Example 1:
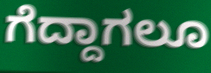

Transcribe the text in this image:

ಗೆದ್ದಾಗಲೂ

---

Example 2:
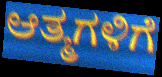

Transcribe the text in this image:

ಆತ್ಮಗಳಿಗೆ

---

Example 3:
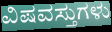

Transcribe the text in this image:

ವಿಷವಸ್ತುಗಳು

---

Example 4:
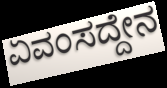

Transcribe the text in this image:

ಏವಂಸದ್ದೇನ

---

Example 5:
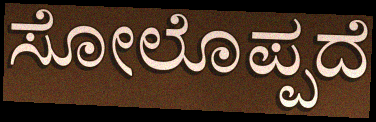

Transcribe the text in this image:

ಸೋಲೊಪ್ಪದೆ